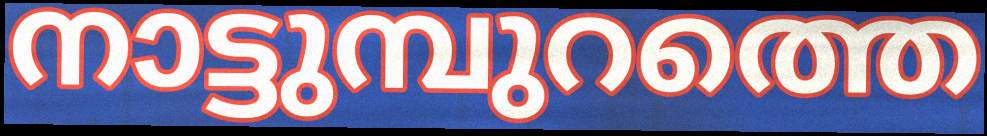
നാട്ടുമ്പുറത്തെ